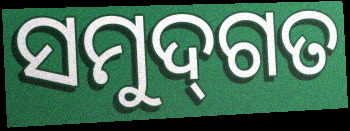
ସମୁଦ୍‌ଗତ